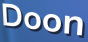
Doon